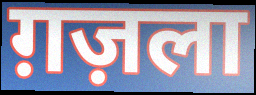
ग़ज़ला